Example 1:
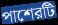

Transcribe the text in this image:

পাশেরটি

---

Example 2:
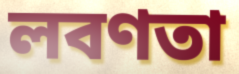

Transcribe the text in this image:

লবণতা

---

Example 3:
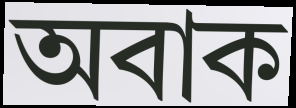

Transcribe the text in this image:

অবাক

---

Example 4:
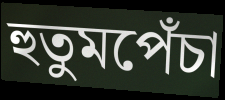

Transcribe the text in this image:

হুতুমপেঁচা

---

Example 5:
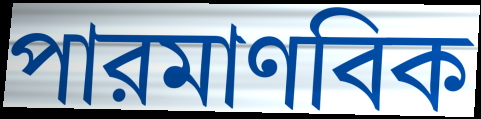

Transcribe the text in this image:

পারমাণবিক